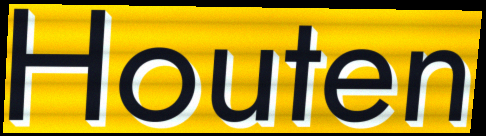
Houten